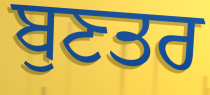
ਬੁਣਤਰ